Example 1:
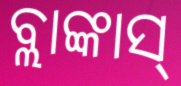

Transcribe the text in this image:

ବ୍ଲାଙ୍କାସ୍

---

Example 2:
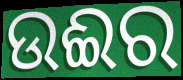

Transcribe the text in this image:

ଉଈର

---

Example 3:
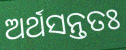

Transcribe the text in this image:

ଅର୍ଥସନ୍ତତଃ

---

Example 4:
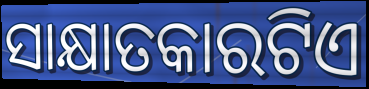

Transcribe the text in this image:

ସାକ୍ଷାତକାରଟିଏ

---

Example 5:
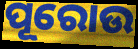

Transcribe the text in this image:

ପୂରୋଉ